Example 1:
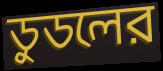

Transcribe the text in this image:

ডুডলের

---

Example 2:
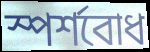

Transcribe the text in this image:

স্পর্শবোধ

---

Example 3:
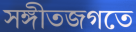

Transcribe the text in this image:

সঙ্গীতজগতে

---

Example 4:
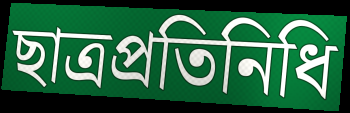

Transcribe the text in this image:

ছাত্রপ্রতিনিধি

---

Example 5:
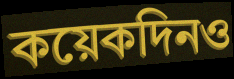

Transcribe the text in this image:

কয়েকদিনও